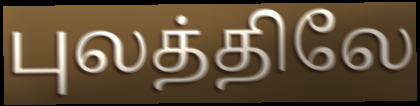
புலத்திலே